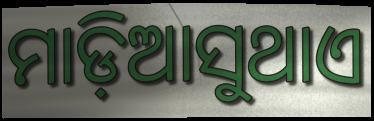
ମାଡ଼ିଆସୁଥାଏ